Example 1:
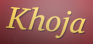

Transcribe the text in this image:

Khoja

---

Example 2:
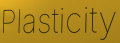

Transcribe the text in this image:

Plasticity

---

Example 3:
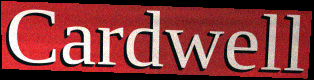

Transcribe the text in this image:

Cardwell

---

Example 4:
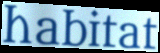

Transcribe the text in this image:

habitat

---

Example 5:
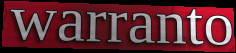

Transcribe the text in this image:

warranto